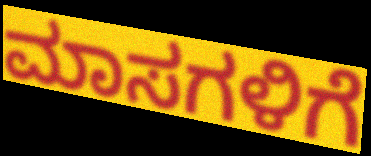
ಮಾಸಗಳಿಗೆ